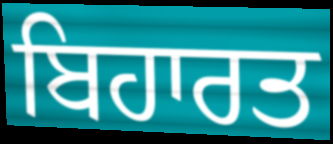
ਬਿਹਾਰਤ